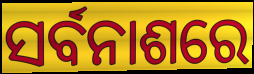
ସର୍ବନାଶରେ